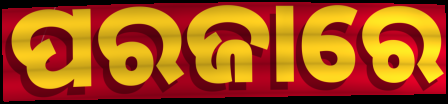
ପରଜାରେ